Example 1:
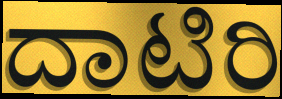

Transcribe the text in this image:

ದಾಟಿರಿ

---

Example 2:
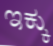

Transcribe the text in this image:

ಇಕ್ಕು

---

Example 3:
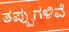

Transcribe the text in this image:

ತಪ್ಪುಗಳಿವೆ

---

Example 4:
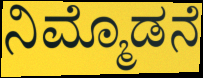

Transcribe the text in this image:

ನಿಮ್ಮೊಡನೆ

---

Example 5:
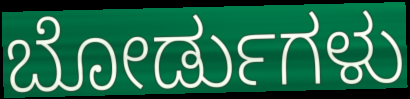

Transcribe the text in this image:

ಬೋರ್ಡುಗಳು